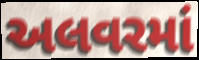
અલવરમાં